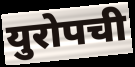
युरोपची